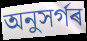
অনুসৰ্গৰ